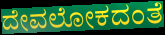
ದೇವಲೋಕದಂತೆ